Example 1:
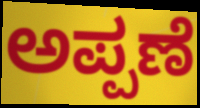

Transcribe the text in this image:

ಅಪ್ಪಣೆ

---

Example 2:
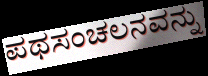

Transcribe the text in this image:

ಪಥಸಂಚಲನವನ್ನು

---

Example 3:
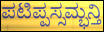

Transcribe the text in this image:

ಪಟಿಪ್ಪಸ್ಸಮ್ಭನ್ತಿ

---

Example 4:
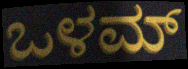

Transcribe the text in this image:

ಒಳಮ್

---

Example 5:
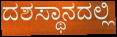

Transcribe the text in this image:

ದಶಸ್ಥಾನದಲ್ಲಿ